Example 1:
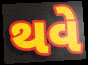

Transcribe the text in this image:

થવે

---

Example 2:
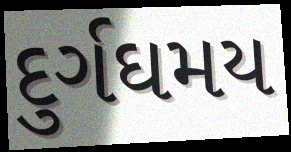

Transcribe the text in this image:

દુર્ગઘમય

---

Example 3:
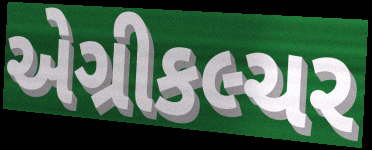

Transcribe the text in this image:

એગ્રીકલ્ચર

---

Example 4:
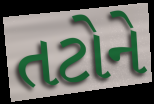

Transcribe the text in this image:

તટોને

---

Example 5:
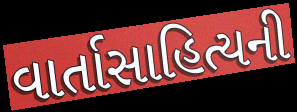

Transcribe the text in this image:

વાર્તાસાહિત્યની